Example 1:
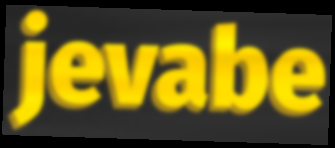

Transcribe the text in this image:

jevabe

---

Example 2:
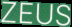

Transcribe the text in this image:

ZEUS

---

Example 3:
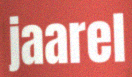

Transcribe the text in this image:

jaarel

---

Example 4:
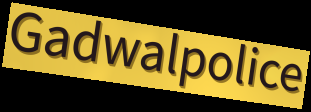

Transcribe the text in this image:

Gadwalpolice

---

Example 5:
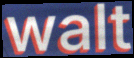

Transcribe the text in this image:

walt